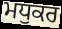
ਮਧੁਕਰ